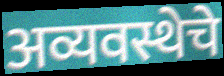
अव्यवस्थेचे